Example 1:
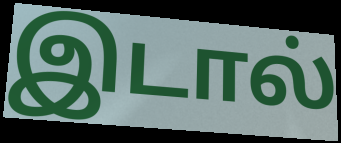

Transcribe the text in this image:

இடால்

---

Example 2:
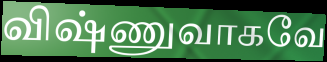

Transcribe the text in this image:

விஷ்ணுவாகவே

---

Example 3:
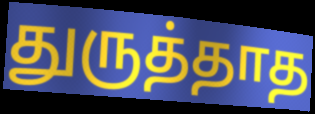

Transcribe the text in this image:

துருத்தாத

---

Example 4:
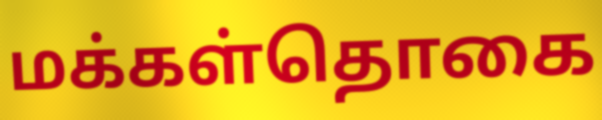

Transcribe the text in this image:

மக்கள்தொகை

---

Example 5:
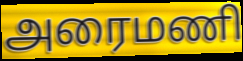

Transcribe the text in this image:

அரைமணி